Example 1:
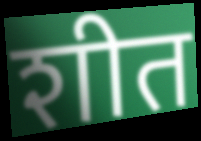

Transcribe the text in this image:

शीत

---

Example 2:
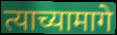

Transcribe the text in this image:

त्याच्यामागे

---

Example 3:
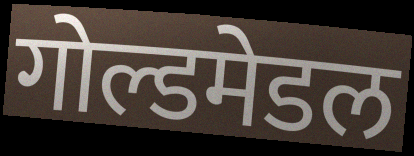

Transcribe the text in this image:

गोल्डमेडल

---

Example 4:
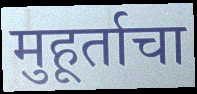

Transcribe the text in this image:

मुहूर्ताचा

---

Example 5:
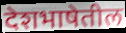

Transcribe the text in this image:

देशभाषेतील